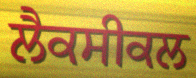
ਲੈਕਸੀਕਲ